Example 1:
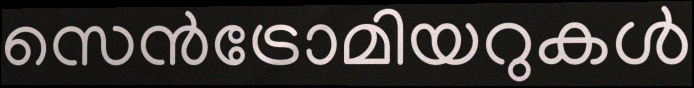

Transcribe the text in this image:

സെൻട്രോമിയറുകൾ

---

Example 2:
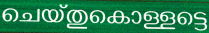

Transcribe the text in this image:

ചെയ്തുകൊള്ളട്ടെ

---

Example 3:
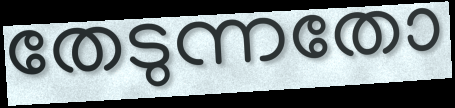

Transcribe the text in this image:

തേടുന്നതോ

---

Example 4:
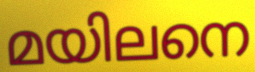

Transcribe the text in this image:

മയിലനെ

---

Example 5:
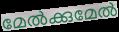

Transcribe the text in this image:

മേൽക്കുമേൽ